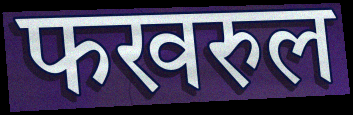
फखरुल